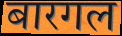
बारगल